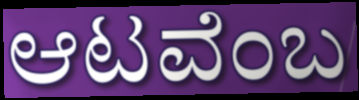
ಆಟವೆಂಬ